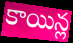
కాయిన్ల